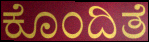
ಕೊಂದಿತೆ